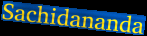
Sachidananda